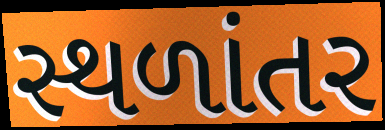
સ્થળાંતર